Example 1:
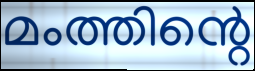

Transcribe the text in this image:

മംത്തിന്റെ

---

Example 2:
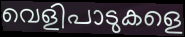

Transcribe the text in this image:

വെളിപാടുകളെ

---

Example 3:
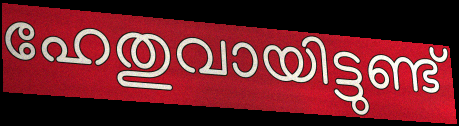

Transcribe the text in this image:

ഹേതുവായിട്ടുണ്ട്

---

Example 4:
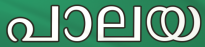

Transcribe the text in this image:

പാലയ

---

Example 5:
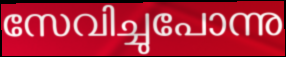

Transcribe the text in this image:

സേവിച്ചുപോന്നു